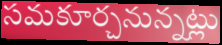
సమకూర్చనున్నట్లు